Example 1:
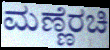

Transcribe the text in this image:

ಮಣ್ಣೆರಚಿ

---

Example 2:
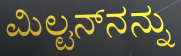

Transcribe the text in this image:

ಮಿಲ್ಟನ್‌ನನ್ನು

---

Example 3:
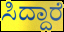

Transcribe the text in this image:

ಸಿದ್ದಾರೆ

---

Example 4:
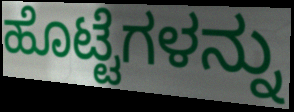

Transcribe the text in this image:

ಹೊಟ್ಟೆಗಳನ್ನು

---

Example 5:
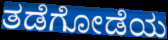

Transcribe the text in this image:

ತಡೆಗೋಡೆಯ